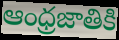
ఆంధ్రజాతికి